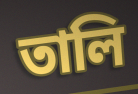
তালি